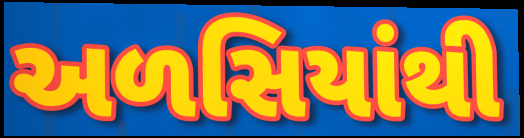
અળસિયાંથી